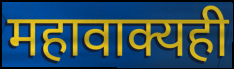
महावाक्यही